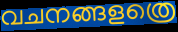
വചനങ്ങളത്രെ